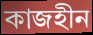
কাজহীন